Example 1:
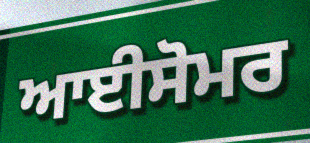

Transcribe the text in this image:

ਆਈਸੋਮਰ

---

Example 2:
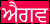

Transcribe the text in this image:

ਐਗਵ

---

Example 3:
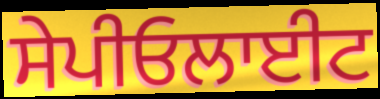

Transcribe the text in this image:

ਸੇਪੀਓਲਾਈਟ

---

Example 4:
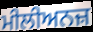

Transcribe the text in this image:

ਮੀਲੀਅਨਜ਼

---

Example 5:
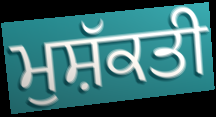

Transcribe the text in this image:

ਮੁਸ਼ੱਕਤੀ